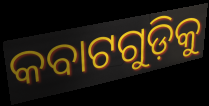
କବାଟଗୁଡ଼ିକୁ